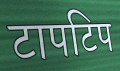
टापटिप